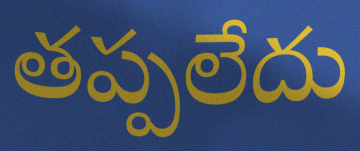
తప్పలేదు